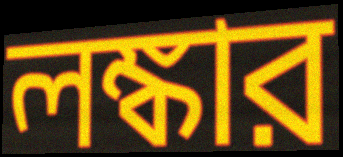
লঙ্কার